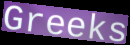
Greeks